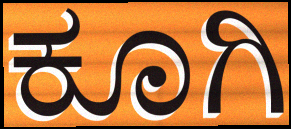
ಕೂಗಿ